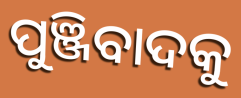
ପୁଞ୍ଜିବାଦକୁ